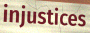
injustices